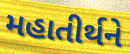
મહાતીર્થને